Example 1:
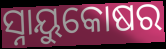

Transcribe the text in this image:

ସ୍ନାୟୁକୋଷର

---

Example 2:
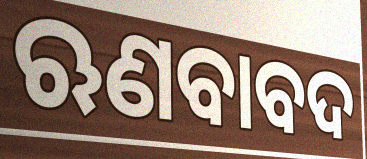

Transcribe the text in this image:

ଋଣବାବଦ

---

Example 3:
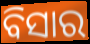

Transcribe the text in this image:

ବିସାର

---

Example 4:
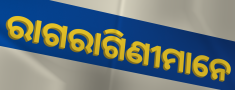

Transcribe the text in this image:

ରାଗରାଗିଣୀମାନେ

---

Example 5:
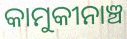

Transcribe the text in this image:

କାମୁକୀନାଞ୍ଚ